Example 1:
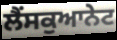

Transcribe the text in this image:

ਲੈਂਸਕੁਆਨੇਟ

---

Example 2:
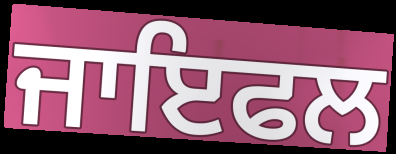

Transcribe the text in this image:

ਜਾਇਫਲ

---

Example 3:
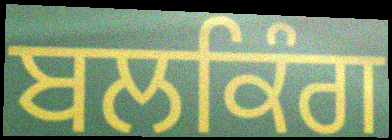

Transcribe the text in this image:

ਬਲਕਿੰਗ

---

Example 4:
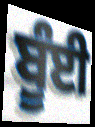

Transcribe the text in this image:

ਬੂੰਈ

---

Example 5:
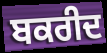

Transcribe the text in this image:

ਬਕਰੀਦ